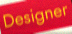
Designer